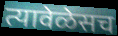
त्यावेळेसच